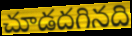
చూడదగినది